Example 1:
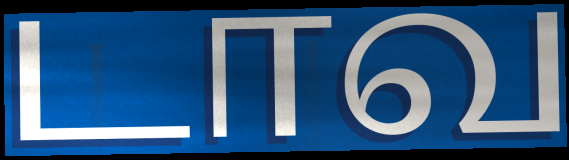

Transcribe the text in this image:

டாவ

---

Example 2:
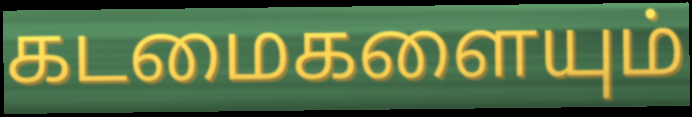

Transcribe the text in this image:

கடமைகளையும்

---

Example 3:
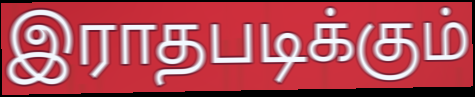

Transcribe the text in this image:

இராதபடிக்கும்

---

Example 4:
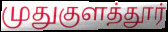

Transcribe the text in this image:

முதுகுளத்தூர்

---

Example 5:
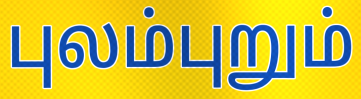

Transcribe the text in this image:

புலம்புறும்